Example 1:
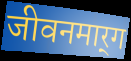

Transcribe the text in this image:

जीवनमार्ग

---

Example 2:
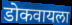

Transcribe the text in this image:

डोकवायला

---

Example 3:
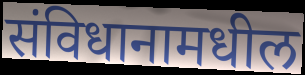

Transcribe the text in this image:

संविधानामधील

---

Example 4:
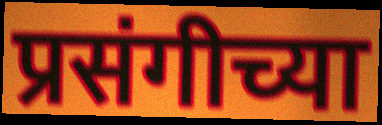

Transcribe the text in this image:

प्रसंगीच्या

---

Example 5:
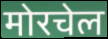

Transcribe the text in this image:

मोरचेल